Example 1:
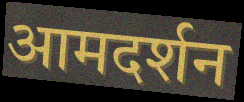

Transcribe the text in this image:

आमदर्शन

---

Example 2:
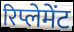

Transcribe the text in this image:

रिप्लेमेंट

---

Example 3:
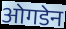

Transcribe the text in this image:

ओगडेन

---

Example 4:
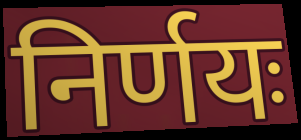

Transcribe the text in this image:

निर्णयः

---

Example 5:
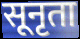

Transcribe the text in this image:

सूनृता